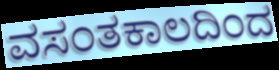
ವಸಂತಕಾಲದಿಂದ